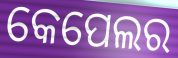
କେପେଲର